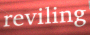
reviling